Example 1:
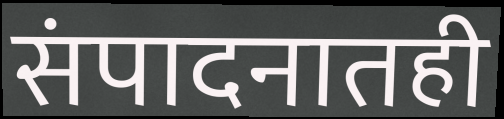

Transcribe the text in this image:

संपादनातही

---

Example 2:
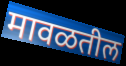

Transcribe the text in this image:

मावळतील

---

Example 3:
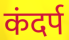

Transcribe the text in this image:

कंदर्प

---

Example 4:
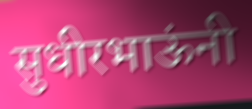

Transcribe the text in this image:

सुधीरभाऊंनी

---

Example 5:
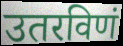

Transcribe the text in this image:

उतरविणं